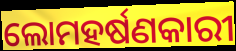
ଲୋମହର୍ଷଣକାରୀ